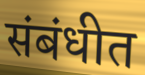
संबंधीत